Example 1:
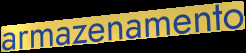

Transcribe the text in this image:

armazenamento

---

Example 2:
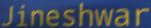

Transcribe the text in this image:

Jineshwar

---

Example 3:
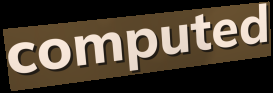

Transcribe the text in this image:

computed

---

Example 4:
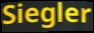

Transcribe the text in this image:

Siegler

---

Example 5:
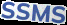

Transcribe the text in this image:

SSMS